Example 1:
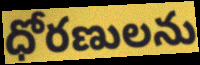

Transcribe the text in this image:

ధోరణులను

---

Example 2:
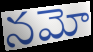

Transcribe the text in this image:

నమో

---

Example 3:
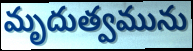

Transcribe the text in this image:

మృదుత్వమును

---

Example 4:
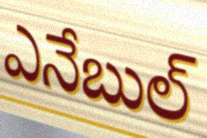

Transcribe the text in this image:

ఎనేబుల్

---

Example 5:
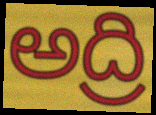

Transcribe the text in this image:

అద్రి